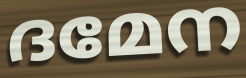
ദമേന